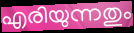
എരിയുന്നതും